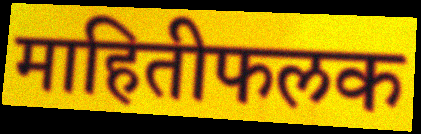
माहितीफलक